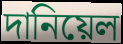
দানিয়েল